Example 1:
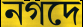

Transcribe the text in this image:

নগদে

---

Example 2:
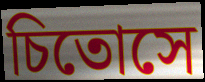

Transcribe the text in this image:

চিতোসে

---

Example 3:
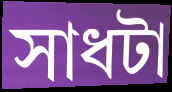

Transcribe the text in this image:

সাধটা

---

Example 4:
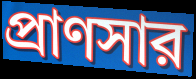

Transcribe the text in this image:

প্রাণসার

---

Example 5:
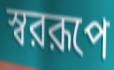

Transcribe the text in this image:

স্বররূপে